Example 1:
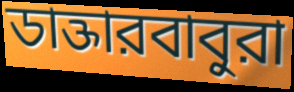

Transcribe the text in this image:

ডাক্তারবাবুরা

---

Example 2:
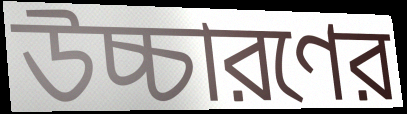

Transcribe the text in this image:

উচ্চারণের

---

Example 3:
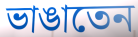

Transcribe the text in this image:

ভাঙাতেন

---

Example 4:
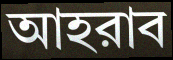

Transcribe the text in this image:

আহরাব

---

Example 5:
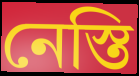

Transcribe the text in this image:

নেস্তি